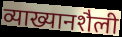
व्याख्यानशैली